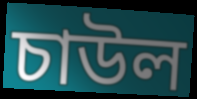
চাউল